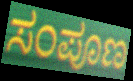
ಸಂಪೂಣ